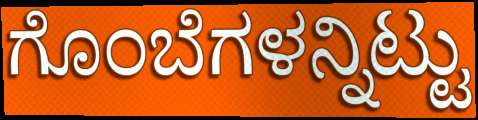
ಗೊಂಬೆಗಳನ್ನಿಟ್ಟು